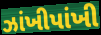
ઝાંખીપાંખી